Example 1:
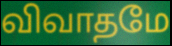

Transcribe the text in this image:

விவாதமே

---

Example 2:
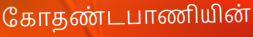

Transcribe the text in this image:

கோதண்டபாணியின்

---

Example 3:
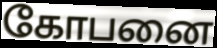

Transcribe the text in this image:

கோபனை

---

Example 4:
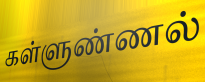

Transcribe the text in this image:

கள்ளுண்ணல்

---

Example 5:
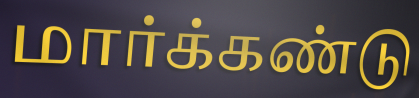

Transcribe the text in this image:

மார்க்கண்டு